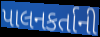
પાલનકર્તાની